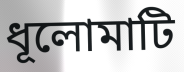
ধূলোমাটি